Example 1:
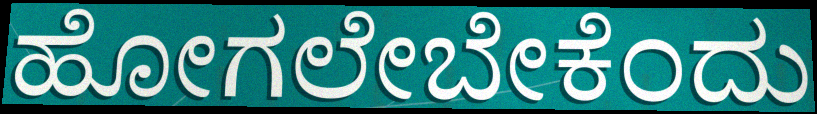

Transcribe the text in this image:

ಹೋಗಲೇಬೇಕೆಂದು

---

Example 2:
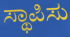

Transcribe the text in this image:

ಸ್ಥಾಪಿಸು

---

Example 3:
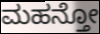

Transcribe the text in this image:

ಮಹನ್ತೋ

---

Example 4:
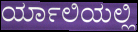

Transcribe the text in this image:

ರ್ಯಾಲಿಯಲ್ಲಿ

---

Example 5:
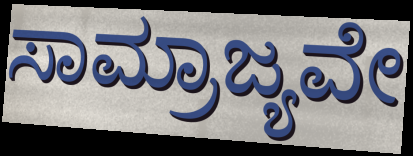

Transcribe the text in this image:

ಸಾಮ್ರಾಜ್ಯವೇ